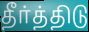
தீர்த்திடு